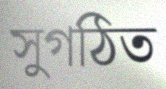
সুগঠিত